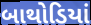
બાથોડિયાં